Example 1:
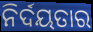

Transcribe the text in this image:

ନିର୍ଦୟତାର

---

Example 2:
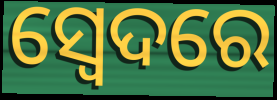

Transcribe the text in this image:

ସ୍ଵେଦରେ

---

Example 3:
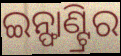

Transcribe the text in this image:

ଇନ୍ଫାଣ୍ଟ୍ରିର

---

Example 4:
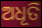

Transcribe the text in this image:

ଅଧୂତି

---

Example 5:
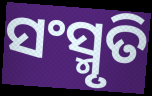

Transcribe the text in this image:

ସଂସ୍ମୃତି